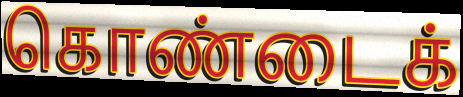
கொண்டைக்